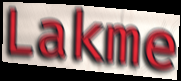
Lakme